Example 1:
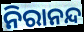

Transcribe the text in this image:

ନିରାନନ୍ଦ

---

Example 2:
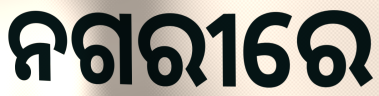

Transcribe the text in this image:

ନଗରୀରେ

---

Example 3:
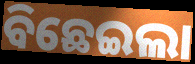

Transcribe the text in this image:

ବିଛେଇଲା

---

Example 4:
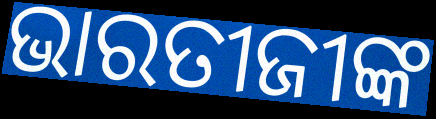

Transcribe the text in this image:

ଭାରତୀଜୀଙ୍କ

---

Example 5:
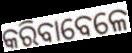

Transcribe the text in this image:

କରିବାବେଳେ